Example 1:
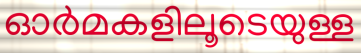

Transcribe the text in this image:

ഓർമകളിലൂടെയുള്ള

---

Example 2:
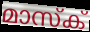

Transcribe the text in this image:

മാസ്‌ക്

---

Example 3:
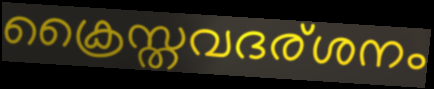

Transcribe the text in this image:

ക്രൈസ്തവദര്ശനം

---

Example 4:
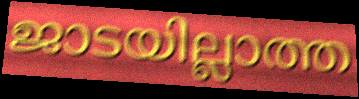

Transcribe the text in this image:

ജാടയില്ലാത്ത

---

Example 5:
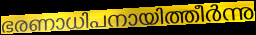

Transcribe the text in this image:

ഭരണാധിപനായിത്തീർന്നു